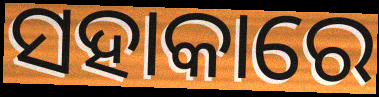
ସହାକାରେ